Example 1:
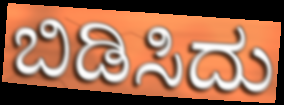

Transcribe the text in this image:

ಬಿಡಿಸಿದು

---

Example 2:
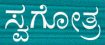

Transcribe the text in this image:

ಸ್ವಗೋತ್ರ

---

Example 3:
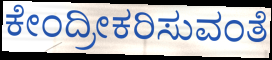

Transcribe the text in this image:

ಕೇಂದ್ರೀಕರಿಸುವಂತೆ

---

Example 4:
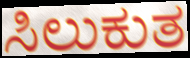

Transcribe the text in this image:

ಸಿಲುಕುತ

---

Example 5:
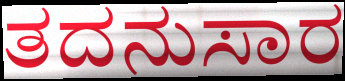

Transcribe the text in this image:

ತದನುಸಾರ